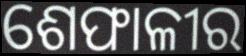
ଶେଫାଳୀର